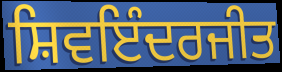
ਸ਼ਿਵਇੰਦਰਜੀਤ